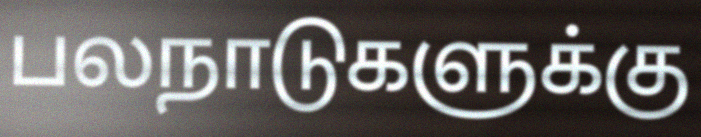
பலநாடுகளுக்கு